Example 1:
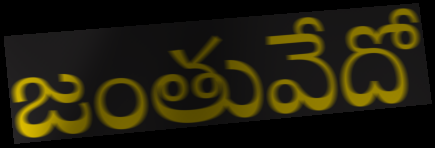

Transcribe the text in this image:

జంతువేదో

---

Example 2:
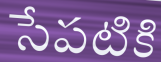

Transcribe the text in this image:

సేపటికి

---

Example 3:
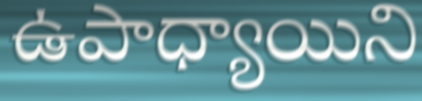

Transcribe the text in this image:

ఉపాధ్యాయిని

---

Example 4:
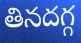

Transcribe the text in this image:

తినదగ్గ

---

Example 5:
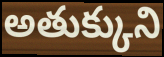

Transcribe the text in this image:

అతుక్కుని